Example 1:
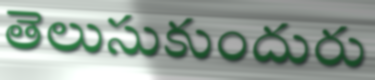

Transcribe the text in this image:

తెలుసుకుందురు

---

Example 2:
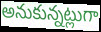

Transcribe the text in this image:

అనుకున్నట్లుగా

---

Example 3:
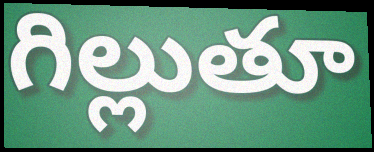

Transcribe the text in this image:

గిల్లుతూ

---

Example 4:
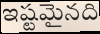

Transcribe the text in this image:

ఇష్టమైనది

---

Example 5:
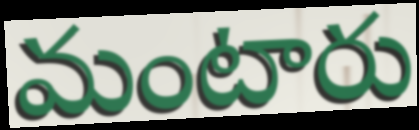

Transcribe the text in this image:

మంటారు